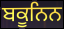
ਬਕੂਨਿਨ